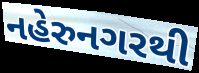
નહેરુનગરથી